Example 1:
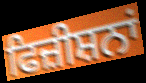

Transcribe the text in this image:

ਫਿਜ਼ੀਸ਼ਨਾਂ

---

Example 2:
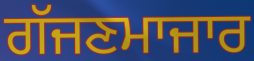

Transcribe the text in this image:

ਗੱਜਣਮਾਜਾਰ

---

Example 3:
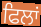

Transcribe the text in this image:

ਫਿਲਾਂ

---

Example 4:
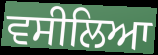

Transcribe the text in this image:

ਵਸੀਲਿਆ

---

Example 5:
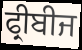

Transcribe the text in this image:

ਫ੍ਰੀਬੀਜ